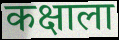
कक्षाला